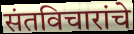
संतविचारांचे